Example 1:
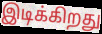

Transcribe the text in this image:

இடிக்கிறது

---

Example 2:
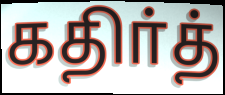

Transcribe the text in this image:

கதிர்த்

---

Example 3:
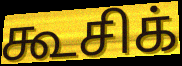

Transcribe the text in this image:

கூசிக்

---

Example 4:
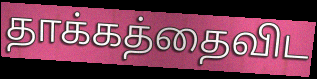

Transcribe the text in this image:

தாக்கத்தைவிட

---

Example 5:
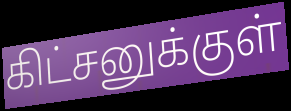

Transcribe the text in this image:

கிட்சனுக்குள்